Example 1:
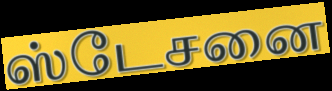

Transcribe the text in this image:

ஸ்டேசனை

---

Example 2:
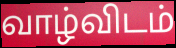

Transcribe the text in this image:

வாழ்விடம்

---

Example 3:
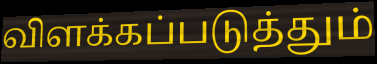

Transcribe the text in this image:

விளக்கப்படுத்தும்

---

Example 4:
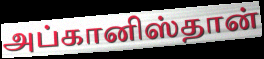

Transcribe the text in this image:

அப்கானிஸ்தான்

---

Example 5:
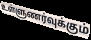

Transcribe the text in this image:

உள்ளுணர்வுக்கும்